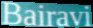
Bairavi